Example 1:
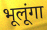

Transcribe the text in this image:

भूलूंगा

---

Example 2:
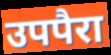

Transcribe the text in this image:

उपपैरा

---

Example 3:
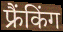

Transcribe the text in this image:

फ्रैंकिंग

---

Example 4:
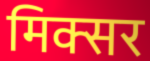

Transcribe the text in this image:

मिक्सर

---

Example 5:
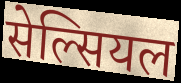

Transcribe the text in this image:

सेल्सियल